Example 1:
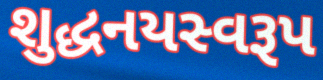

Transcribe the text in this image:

શુદ્ધનયસ્વરૂપ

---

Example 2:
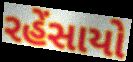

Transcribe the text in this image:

રહેંસાયો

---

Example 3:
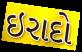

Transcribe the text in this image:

ઇરાદો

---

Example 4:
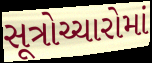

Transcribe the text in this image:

સૂત્રોચ્ચારોમાં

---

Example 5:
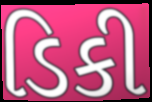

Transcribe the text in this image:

ડિકી